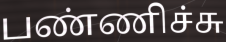
பண்ணிச்சு